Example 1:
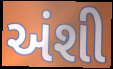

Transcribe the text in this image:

અંશી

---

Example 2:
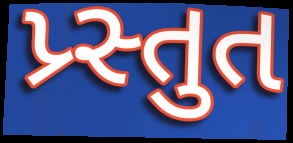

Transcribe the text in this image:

પ્ર્સ્તુત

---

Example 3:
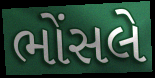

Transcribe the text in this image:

ભોંસલે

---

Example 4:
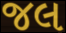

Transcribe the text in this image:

જલ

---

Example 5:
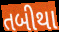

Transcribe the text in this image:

તબીથા